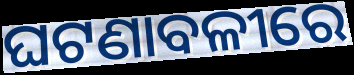
ଘଟଣାବଳୀରେ